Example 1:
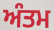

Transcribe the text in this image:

ਅੰਤਮ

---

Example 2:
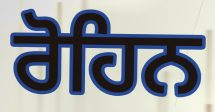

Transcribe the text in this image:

ਰੋਹਿਨ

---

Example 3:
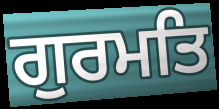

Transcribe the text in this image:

ਗੁਰਮਤਿ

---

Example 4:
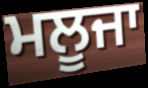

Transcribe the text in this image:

ਮਲੂਜਾ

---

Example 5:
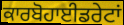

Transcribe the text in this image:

ਕਾਰਬੋਹਾਈਡਰੇਟਾਂ